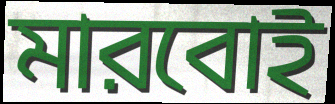
মারবোই